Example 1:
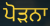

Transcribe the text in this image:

ਪੋੜਨਾ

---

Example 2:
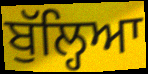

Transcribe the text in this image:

ਬੁੱਲ੍ਹਿਆ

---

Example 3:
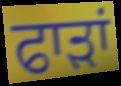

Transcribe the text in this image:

ਫਾੜਾਂ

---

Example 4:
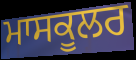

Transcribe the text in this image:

ਮਾਸਕੂਲਰ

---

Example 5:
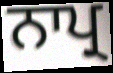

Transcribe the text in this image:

ਨਾਪ੍ਰ